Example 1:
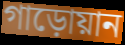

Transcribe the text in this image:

গাড়োয়ান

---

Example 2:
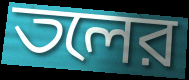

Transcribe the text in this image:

তলের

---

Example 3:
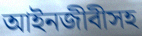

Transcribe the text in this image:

আইনজীবীসহ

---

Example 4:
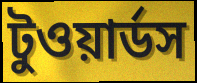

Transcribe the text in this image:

টুওয়ার্ডস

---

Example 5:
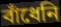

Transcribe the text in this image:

বাঁধেনি